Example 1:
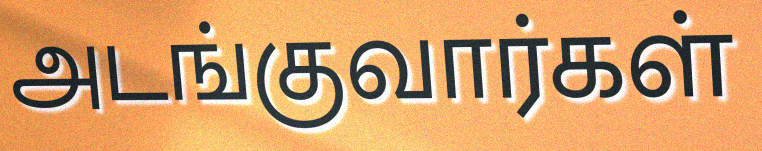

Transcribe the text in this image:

அடங்குவார்கள்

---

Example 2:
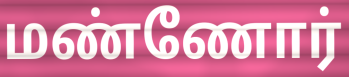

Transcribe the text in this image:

மண்ணோர்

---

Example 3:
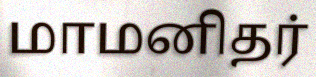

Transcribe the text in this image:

மாமனிதர்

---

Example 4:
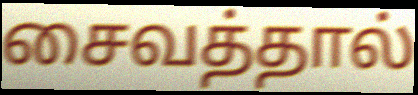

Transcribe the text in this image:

சைவத்தால்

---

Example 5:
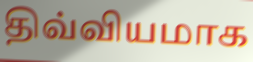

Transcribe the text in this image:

திவ்வியமாக